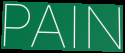
PAIN